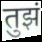
तुझं